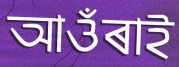
আওঁৰাই